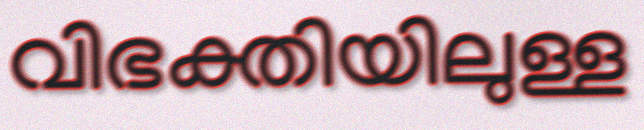
വിഭക്തിയിലുള്ള